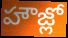
హౌజ్లో